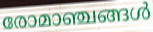
രോമാഞ്ചങ്ങൾ